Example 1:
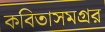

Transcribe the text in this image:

কবিতাসমগ্রর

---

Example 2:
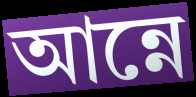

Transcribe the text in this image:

আন্নে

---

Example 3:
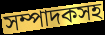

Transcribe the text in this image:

সম্পাদকসহ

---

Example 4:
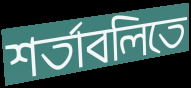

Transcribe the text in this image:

শর্তাবলিতে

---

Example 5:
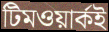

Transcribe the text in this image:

টিমওয়ার্কই